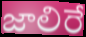
జాలిరే